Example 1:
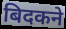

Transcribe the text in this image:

बिदकने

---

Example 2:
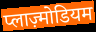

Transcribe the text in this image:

प्लाज़्मोडियम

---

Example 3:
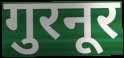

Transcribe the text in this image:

गुरनूर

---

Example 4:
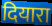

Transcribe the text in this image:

दियारा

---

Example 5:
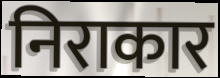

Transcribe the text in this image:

निराकार